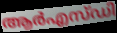
ആർഎസ്ഡി